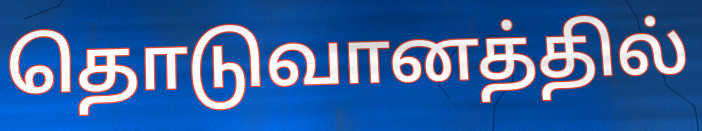
தொடுவானத்தில்